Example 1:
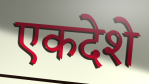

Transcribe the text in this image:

एकदेशे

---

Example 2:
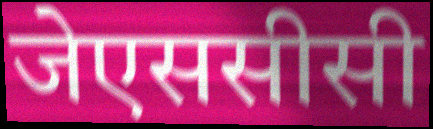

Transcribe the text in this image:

जेएससीसी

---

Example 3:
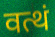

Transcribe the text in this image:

वत्थं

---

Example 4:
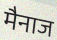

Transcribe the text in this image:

मैनाज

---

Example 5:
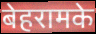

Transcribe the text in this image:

बेहरामके